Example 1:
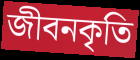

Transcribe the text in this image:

জীবনকৃতি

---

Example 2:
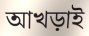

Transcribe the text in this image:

আখড়াই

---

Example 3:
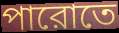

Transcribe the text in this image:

পারোতে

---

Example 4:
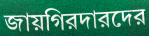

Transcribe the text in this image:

জায়গিরদারদের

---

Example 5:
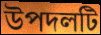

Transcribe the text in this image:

উপদলটি